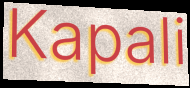
Kapali